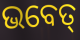
ଭବେତ୍